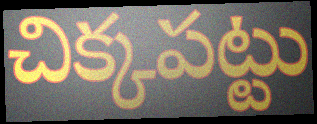
చిక్కపట్టు